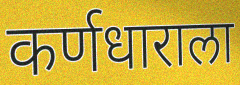
कर्णधाराला